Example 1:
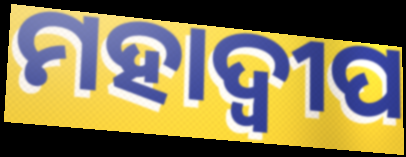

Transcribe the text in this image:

ମହାଦ୍ୱୀପ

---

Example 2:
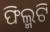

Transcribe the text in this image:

ଫିଲ୍ମଟି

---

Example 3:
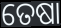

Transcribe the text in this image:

ତେଷା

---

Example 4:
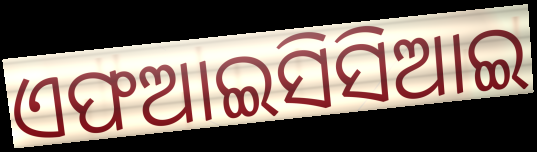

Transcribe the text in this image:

ଏଫଆଇସିସିଆଇ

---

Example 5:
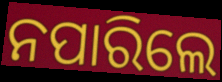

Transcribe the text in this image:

ନପାରିଲେ